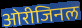
ओरीजिनल